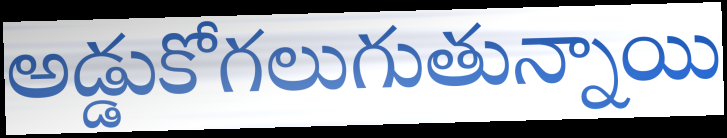
అడ్డుకోగలుగుతున్నాయి